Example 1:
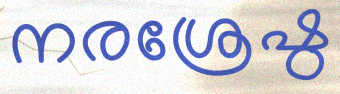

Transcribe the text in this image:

നരശ്രേഷ്ഠ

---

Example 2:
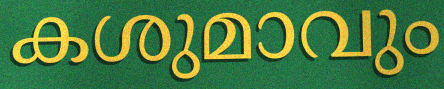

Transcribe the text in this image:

കശുമാവും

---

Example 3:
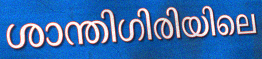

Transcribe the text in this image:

ശാന്തിഗിരിയിലെ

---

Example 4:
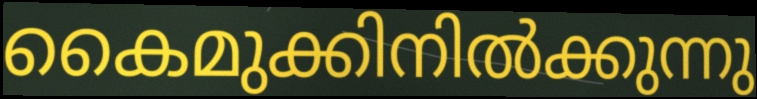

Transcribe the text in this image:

കൈമുക്കിനിൽക്കുന്നു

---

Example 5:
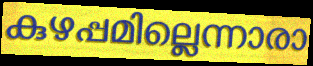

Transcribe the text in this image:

കുഴപ്പമില്ലെന്നാരാ